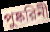
পুষ্করিনী